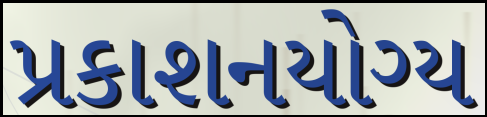
પ્રકાશનયોગ્ય